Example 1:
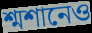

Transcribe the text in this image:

শ্মশানেও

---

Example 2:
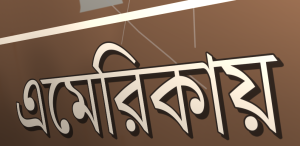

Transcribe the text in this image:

এমেরিকায়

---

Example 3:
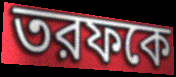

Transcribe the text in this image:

তরফকে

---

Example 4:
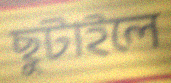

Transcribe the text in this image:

ছুটাইলে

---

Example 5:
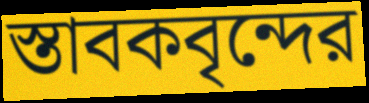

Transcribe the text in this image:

স্তাবকবৃন্দের